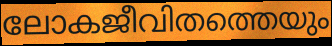
ലോകജീവിതത്തെയും